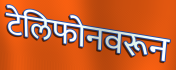
टेलिफोनवरून